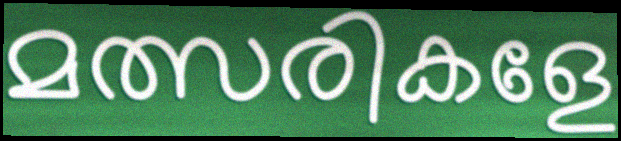
മത്സരികളേ